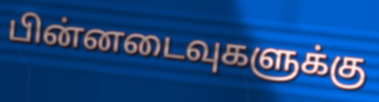
பின்னடைவுகளுக்கு